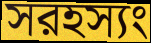
সরহস্যং